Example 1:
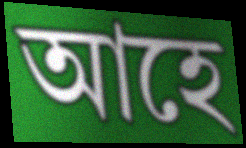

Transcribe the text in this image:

আহে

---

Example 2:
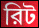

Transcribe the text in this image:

রিট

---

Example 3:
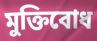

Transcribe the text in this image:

মুক্তিবোধ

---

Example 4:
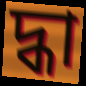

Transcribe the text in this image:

দ্ধা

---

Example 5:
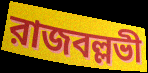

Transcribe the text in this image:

রাজবল্লভী